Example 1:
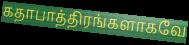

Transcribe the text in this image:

கதாபாத்திரங்களாகவே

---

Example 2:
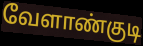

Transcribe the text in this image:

வேளாண்குடி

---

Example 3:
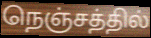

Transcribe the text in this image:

நெஞ்சத்தில்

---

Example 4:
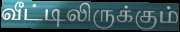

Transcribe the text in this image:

வீட்டிலிருக்கும்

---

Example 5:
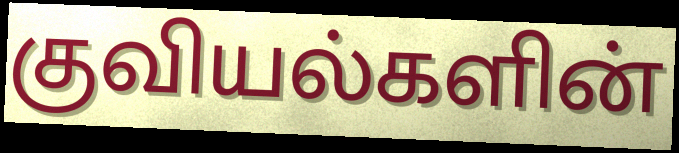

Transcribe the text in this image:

குவியல்களின்